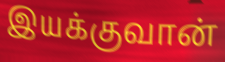
இயக்குவான்